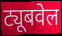
ट्यूबवेल